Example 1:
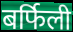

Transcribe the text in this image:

बर्फिली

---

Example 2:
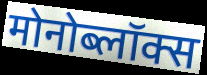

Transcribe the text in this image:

मोनोब्लॉक्स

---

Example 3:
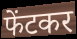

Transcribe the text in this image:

फेंटकर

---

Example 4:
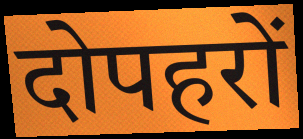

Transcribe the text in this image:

दोपहरों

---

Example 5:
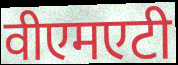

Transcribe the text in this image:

वीएमएटी